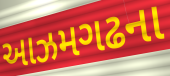
આઝમગઢના